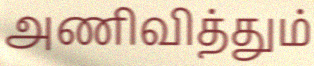
அணிவித்தும்